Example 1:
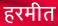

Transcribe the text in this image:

हरमीत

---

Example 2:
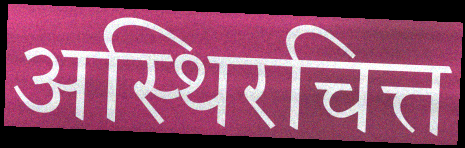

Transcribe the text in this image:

अस्थिरचित्त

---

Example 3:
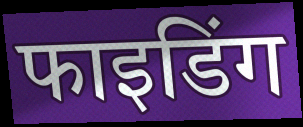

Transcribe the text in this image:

फाइडिंग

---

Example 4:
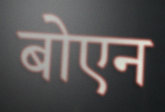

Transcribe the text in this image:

बोएन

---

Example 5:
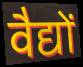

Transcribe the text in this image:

वैद्यों